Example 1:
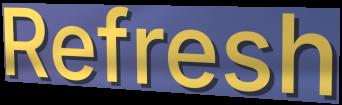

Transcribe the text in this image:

Refresh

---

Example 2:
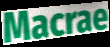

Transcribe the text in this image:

Macrae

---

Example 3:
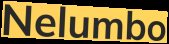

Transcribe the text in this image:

Nelumbo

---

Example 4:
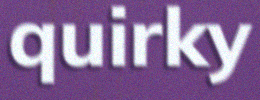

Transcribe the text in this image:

quirky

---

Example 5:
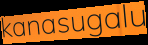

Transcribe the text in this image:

kanasugalu